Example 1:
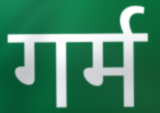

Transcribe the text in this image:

गर्म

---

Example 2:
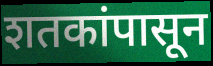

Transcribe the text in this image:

शतकांपासून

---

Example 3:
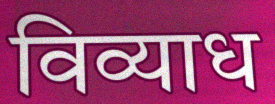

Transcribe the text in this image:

विव्याध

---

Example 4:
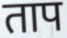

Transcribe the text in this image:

ताप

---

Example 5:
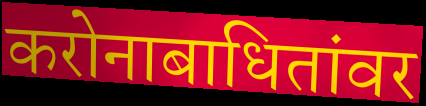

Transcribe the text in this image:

करोनाबाधितांवर